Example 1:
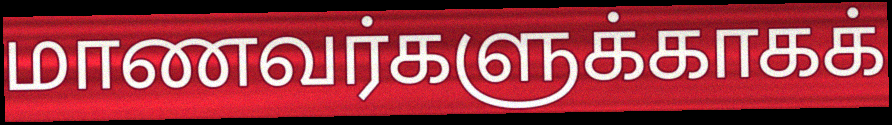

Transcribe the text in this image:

மாணவர்களுக்காகக்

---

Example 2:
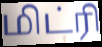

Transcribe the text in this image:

மிட்ரி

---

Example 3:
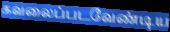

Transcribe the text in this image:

கவலைப்படவேண்டிய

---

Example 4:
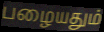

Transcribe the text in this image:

பழையதும்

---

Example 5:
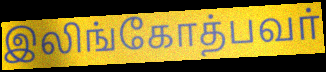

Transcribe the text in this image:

இலிங்கோத்பவர்